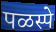
पळस्पे